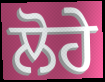
ਲੋਹੇ